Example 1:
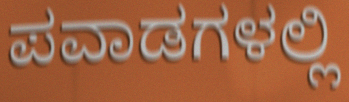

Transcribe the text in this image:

ಪವಾಡಗಳಲ್ಲಿ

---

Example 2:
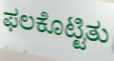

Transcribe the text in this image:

ಫಲಕೊಟ್ಟಿತು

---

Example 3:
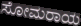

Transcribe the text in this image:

ಸೋಮರಾಯ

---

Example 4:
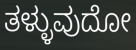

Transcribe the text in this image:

ತಳ್ಳುವುದೋ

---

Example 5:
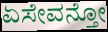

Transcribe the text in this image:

ಏಸೇವನ್ತೋ